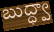
బుద్ధ్వా